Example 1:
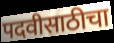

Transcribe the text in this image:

पदवीसाठीचा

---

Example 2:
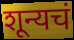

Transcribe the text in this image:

शून्यचं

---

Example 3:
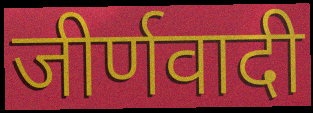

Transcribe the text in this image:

जीर्णवादी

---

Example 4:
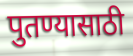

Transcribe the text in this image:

पुतण्यासाठी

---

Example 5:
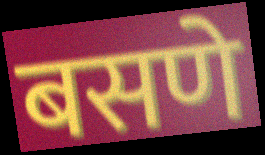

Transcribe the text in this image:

बसणे